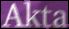
Akta